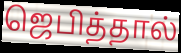
ஜெபித்தால்